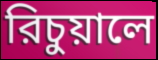
রিচুয়ালে